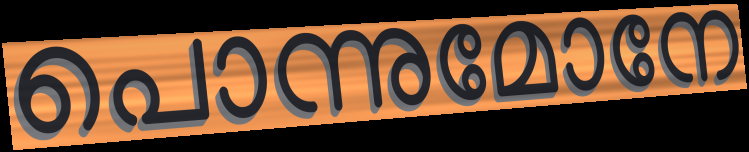
പൊന്നുമോനേ